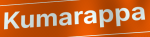
Kumarappa